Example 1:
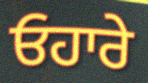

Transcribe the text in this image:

ਓਹਾਰੇ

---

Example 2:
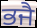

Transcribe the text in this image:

ਭਜੈ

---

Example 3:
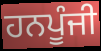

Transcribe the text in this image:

ਹਨਪੂੰਜੀ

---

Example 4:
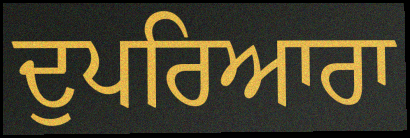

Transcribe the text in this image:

ਦੁਪਰਿਆਰਾ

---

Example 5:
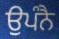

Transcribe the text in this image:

ਉਪੰਨੈ